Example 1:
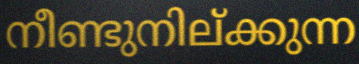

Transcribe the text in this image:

നീണ്ടുനില്ക്കുന്ന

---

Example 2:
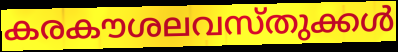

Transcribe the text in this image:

കരകൗശലവസ്തുക്കൾ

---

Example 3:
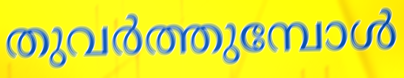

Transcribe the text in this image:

തുവർത്തുമ്പോൾ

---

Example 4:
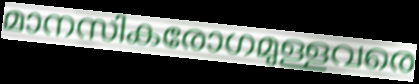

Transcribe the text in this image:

മാനസികരോഗമുള്ളവരെ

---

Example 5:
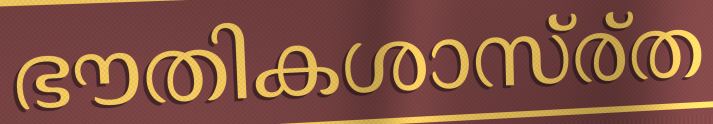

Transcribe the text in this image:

ഭൗതികശാസ്ര്ത